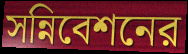
সন্নিবেশনের